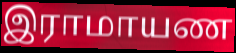
இராமாயண